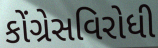
કોંગ્રેસવિરોધી